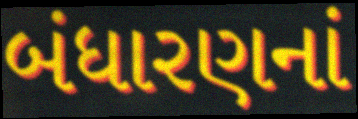
બંધારણનાં